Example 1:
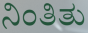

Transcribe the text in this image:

ನಿಂತಿತು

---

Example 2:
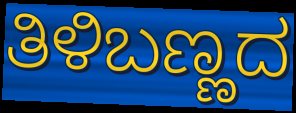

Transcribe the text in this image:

ತಿಳಿಬಣ್ಣದ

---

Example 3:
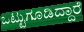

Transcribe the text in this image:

ಒಟ್ಟುಗೂಡಿದ್ದಾರೆ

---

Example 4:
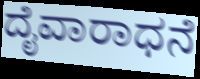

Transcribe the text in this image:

ದೈವಾರಾಧನೆ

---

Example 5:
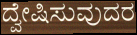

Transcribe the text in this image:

ದ್ವೇಷಿಸುವುದರ